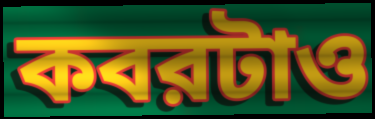
কবরটাও